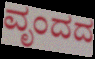
ವೃಂದದ